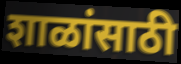
शाळांसाठी